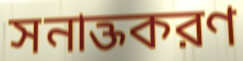
সনাক্তকরণ